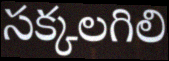
సక్కలగిలి